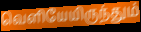
வெளியேயிருந்தும்